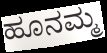
ಹೂನಮ್ಮ